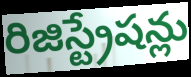
రిజిస్ట్రేషన్లు